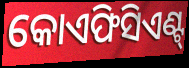
କୋଏଫିସିଏଣ୍ଟ୍